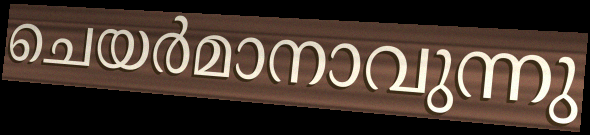
ചെയർമാനാവുന്നു